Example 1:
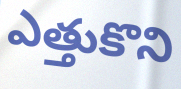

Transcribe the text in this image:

ఎత్తుకొని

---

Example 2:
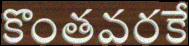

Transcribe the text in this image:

కొంతవరకే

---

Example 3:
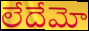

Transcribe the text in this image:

లేదేమో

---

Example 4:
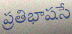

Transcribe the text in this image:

ప్రతిభాషసే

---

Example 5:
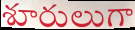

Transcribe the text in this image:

శూరులుగా